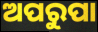
ଅପରୁପା